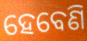
ହେବେଣି